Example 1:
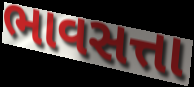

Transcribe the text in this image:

ભાવસત્તા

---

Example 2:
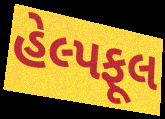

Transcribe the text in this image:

હેલ્પફૂલ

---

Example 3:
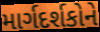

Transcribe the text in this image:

માર્ગદર્શકોને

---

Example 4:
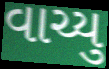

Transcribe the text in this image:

વાચ્યુ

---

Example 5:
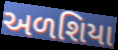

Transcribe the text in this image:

અળશિયા